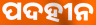
ପଦହୀନ